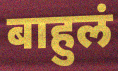
बाहुलं